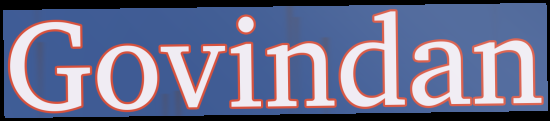
Govindan